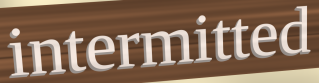
intermitted